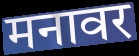
मनावर